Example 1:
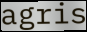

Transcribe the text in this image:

agris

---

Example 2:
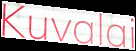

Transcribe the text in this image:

Kuvalai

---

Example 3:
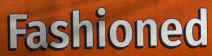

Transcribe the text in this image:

Fashioned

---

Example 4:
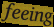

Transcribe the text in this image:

feeing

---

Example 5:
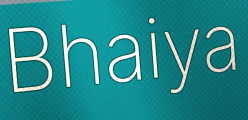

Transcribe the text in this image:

Bhaiya